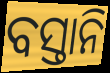
ବସ୍ତାନି